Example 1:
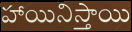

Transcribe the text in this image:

హాయినిస్తాయి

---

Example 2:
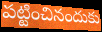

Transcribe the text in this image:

పట్టించినందుకు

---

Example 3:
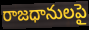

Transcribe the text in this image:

రాజధానులపై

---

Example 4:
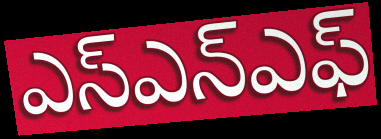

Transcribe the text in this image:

ఎస్ఎన్ఎఫ్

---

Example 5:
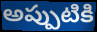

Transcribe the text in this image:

అప్పుటికి